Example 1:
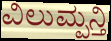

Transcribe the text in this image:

ವಿಲುಮ್ಪನ್ತಿ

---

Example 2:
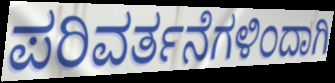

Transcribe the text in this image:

ಪರಿವರ್ತನೆಗಳಿಂದಾಗಿ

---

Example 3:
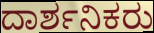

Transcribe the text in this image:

ದಾರ್ಶನಿಕರು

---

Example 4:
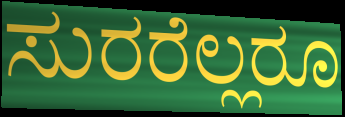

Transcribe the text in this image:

ಸುರರೆಲ್ಲರೂ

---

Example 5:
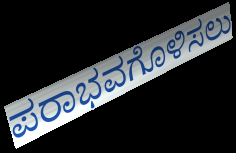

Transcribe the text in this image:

ಪರಾಭವಗೊಳಿಸಲು